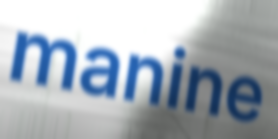
manine